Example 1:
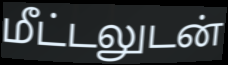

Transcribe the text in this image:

மீட்டலுடன்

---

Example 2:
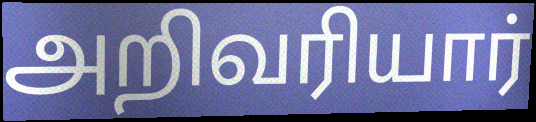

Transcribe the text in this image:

அறிவரியார்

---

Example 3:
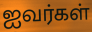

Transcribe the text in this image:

ஐவர்கள்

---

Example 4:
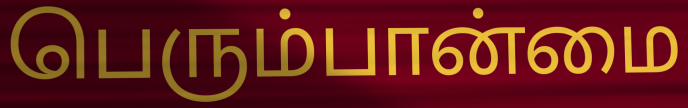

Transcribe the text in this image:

பெரும்பான்மை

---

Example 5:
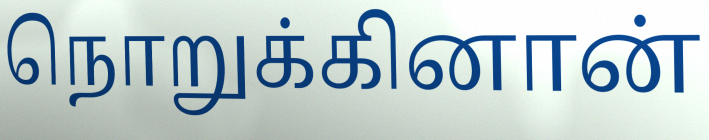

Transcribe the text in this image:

நொறுக்கினான்